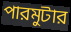
পারমুটার